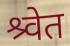
श्र्वेत